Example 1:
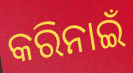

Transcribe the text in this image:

କରିନାଇଁ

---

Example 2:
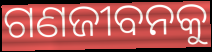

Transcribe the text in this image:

ଗଣଜୀବନକୁ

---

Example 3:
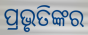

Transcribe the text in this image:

ପ୍ରଭୃତିଙ୍କର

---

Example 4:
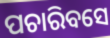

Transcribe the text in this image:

ପଚାରିବସେ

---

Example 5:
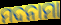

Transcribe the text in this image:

ମଦନାମା